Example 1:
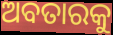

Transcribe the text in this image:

ଅବତାରକୁ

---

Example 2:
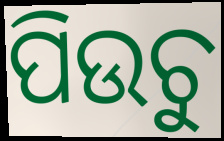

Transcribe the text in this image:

ପିଉଚୁ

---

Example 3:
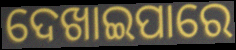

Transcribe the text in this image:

ଦେଖାଇପାରେ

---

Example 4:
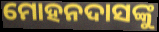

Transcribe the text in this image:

ମୋହନଦାସଙ୍କୁ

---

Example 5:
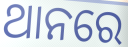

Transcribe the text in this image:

ଥାନରେ